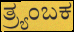
ತ್ರ್ಯಂಬಕ